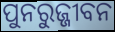
ପୁନରୁଜ୍ଜୀବନ